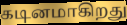
கடினமாகிறது